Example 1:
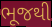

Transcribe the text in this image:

ભૂજથી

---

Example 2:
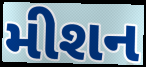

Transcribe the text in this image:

મીશન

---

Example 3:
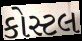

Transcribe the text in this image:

કોસ્ટલ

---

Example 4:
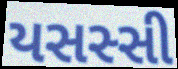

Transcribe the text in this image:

યસસ્સી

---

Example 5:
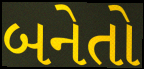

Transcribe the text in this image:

બનેતો